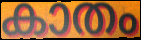
കാതം